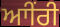
ਆੀਂਰੀ